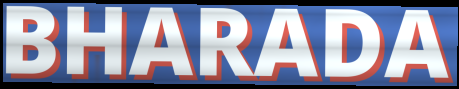
BHARADA